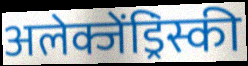
अलेक्जेंड्रिंस्की